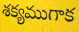
శక్యముగాక